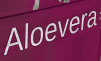
Aloevera